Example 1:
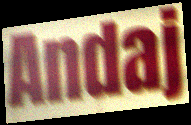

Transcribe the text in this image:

Andaj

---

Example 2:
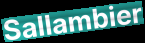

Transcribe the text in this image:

Sallambier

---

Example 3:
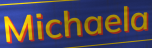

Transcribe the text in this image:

Michaela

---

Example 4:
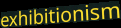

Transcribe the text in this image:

exhibitionism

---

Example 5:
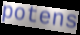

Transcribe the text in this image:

potens